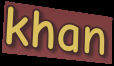
khan